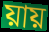
য়ায়